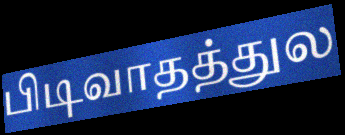
பிடிவாதத்துல